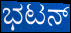
ಭಟನ್